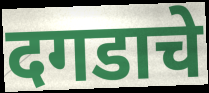
दगडाचे